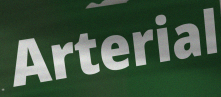
Arterial